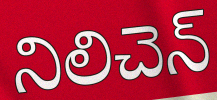
నిలిచెన్